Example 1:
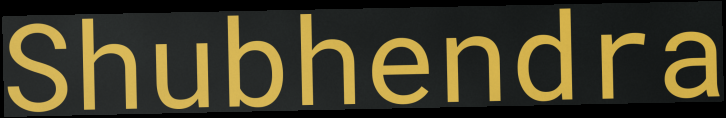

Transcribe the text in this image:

Shubhendra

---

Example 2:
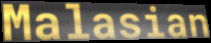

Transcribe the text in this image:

Malasian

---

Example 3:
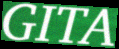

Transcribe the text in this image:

GITA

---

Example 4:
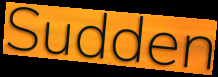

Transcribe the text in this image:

Sudden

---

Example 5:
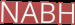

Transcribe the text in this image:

NABH